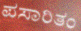
ಪಸಾರಿತಂ